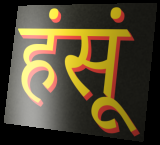
हंसूं